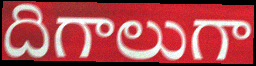
దిగాలుగా